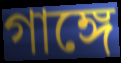
গাঙ্গে